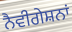
ਨੈਵੀਗੇਸ਼ਨਾਂ